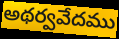
అథర్వవేదము